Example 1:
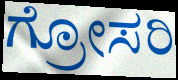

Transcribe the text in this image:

ಗ್ರೋಸರಿ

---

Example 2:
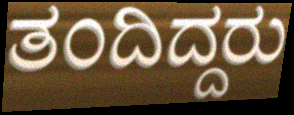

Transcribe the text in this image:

ತಂದಿದ್ದರು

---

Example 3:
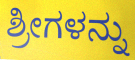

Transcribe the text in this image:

ಶ್ರೀಗಳನ್ನು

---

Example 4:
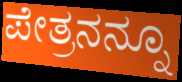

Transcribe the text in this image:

ಪೇತ್ರನನ್ನೂ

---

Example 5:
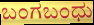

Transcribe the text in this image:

ಬಂಗಬಂಧು